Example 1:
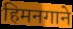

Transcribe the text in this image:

हिमनगाने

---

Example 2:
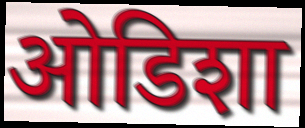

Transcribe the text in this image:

ओडिशा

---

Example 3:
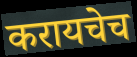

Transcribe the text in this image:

करायचेच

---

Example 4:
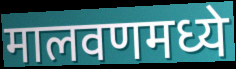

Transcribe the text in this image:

मालवणमध्ये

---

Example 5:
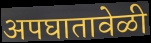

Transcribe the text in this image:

अपघातावेळी